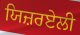
ਯਿਜ਼ਰਏਲੀ